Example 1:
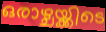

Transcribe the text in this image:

ഒരാഴ്ചയ്ക്കിടെ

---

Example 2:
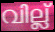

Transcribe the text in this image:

വില്ല്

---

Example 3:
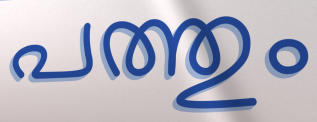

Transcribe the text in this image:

പത്തും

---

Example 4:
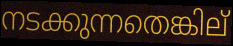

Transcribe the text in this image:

നടക്കുന്നതെങ്കില്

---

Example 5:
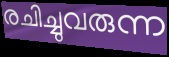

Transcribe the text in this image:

രചിച്ചുവരുന്ന